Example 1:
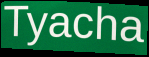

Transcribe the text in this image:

Tyacha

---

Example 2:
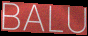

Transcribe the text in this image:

BALU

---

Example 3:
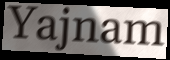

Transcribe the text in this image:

Yajnam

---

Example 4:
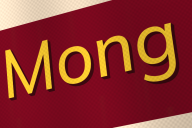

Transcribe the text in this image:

Mong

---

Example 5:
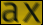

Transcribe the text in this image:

ax